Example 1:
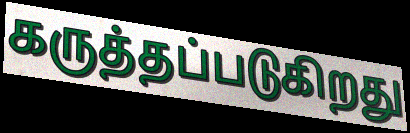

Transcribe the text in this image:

கருத்தப்படுகிறது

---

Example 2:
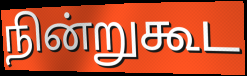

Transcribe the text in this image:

நின்றுகூட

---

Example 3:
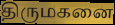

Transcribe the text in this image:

திருமகனை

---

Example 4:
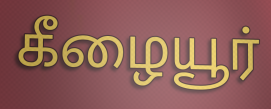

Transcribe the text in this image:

கீழையூர்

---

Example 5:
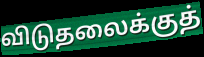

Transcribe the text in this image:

விடுதலைக்குத்